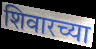
शिवारच्या